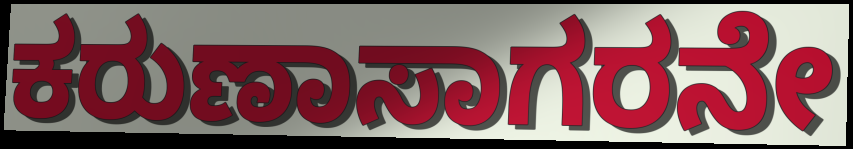
ಕರುಣಾಸಾಗರನೇ